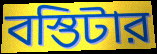
বস্তিটার